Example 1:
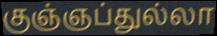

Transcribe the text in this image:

குஞ்ஞப்துல்லா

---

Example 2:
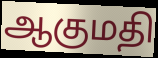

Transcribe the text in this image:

ஆகுமதி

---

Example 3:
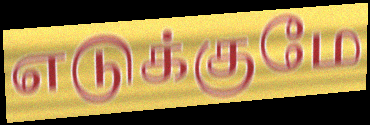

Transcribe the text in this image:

எடுக்குமே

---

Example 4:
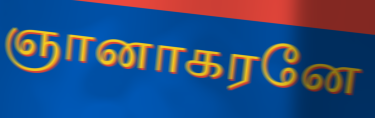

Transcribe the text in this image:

ஞானாகரனே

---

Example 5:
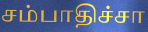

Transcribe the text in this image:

சம்பாதிச்சா